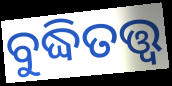
ବୁଦ୍ଧିତତ୍ତ୍ବ